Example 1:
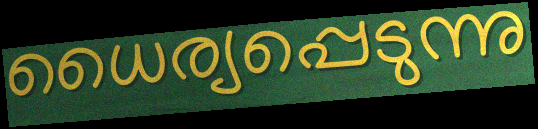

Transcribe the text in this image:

ധൈര്യപ്പെടുന്നു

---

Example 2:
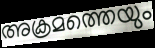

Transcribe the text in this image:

അക്രമത്തെയും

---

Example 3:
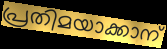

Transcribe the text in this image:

പ്രതിമയാക്കാന്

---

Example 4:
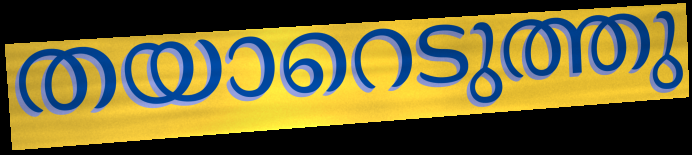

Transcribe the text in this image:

തയാറെടുത്തു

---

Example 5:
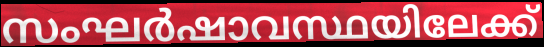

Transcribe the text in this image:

സംഘർഷാവസ്ഥയിലേക്ക്